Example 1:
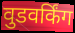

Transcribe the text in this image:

वुडवर्किंग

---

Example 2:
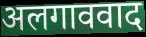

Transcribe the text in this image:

अलगाववाद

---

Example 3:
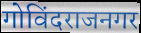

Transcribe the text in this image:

गोविंदराजनगर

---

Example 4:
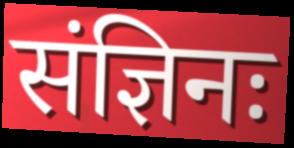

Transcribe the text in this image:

संज्ञिनः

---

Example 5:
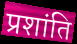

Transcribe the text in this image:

प्रशांति